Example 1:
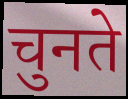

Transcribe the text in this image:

चुनते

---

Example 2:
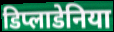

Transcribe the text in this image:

डिप्लाडेनिया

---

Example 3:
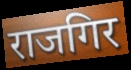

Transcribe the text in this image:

राजगिर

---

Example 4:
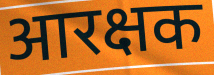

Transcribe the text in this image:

आरक्षक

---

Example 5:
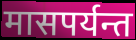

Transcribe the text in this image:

मासपर्यन्त